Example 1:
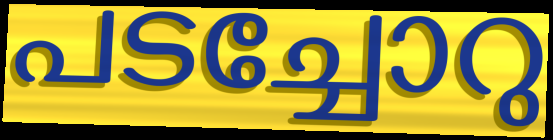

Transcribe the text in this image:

പടച്ചോറു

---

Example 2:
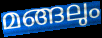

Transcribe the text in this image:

മങ്ങലും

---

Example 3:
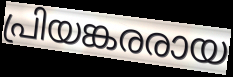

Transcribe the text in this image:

പ്രിയങ്കരരായ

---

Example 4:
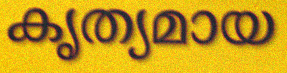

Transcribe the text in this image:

കൃത്യമായ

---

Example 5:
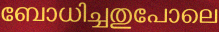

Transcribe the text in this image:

ബോധിച്ചതുപോലെ